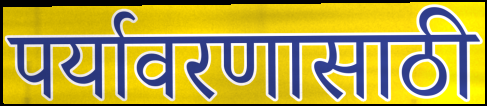
पर्यावरणासाठी